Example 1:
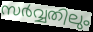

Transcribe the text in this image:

സർവ്വതിലും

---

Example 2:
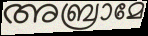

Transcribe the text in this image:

അബ്രാമേ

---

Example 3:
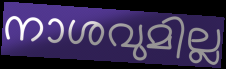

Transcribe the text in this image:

നാശവുമില്ല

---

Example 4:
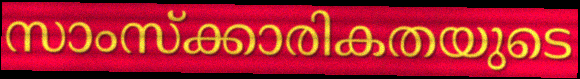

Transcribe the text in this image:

സാംസ്ക്കാരികതയുടെ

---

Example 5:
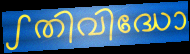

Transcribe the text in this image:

ഽതിവിദ്ധോ